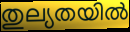
തുല്യതയിൽ